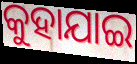
କୁହାଯାଇ